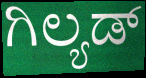
ಗಿಲ್ಯಡ್